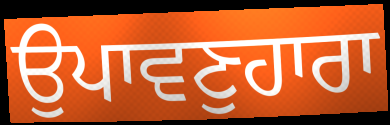
ਉਪਾਵਣੁਹਾਰਾ